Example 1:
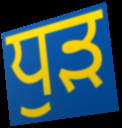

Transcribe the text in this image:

ਧੁੜ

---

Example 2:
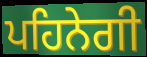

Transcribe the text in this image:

ਪਹਿਨੇਗੀ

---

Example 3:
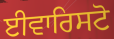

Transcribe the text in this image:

ਈਵਾਰਿਸਟੋ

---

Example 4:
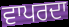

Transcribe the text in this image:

ਵਾਪਰਦਾ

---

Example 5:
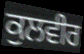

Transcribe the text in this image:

ਕੁਲਵੀਰ